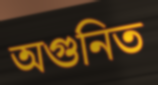
অগুনিত